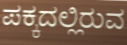
ಪಕ್ಕದಲ್ಲಿರುವ